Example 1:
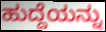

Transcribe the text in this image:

ಹುದ್ದೆಯನ್ನು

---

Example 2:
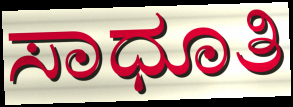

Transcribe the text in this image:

ಸಾಧೂತಿ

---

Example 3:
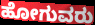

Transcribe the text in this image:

ಹೋಗುವರು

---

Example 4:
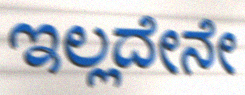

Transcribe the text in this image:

ಇಲ್ಲದೇನೇ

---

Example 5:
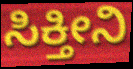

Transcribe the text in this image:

ಸಿಕ್ತೀನಿ